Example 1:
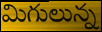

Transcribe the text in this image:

మిగులున్న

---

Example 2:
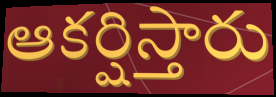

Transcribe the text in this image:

ఆకర్షిస్తారు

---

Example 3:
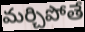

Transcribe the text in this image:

మర్చిపోతే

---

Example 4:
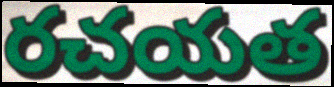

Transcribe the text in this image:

రచయత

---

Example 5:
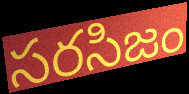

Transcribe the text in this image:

సరసిజం